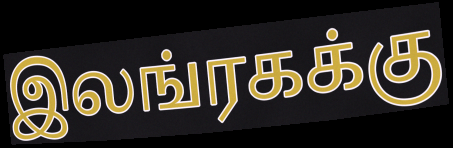
இலங்ரகக்கு